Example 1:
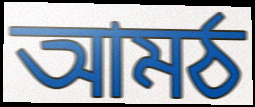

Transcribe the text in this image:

আমঠ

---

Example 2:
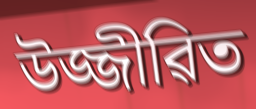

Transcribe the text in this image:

উজ্জীৱিত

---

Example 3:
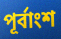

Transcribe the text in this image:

পূৰ্বাংশ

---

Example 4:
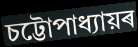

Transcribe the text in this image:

চট্টোপাধ্যায়ৰ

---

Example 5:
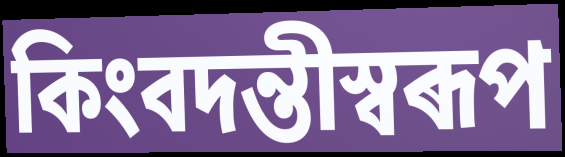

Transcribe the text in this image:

কিংবদন্তীস্বৰূপ